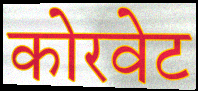
कोरवेट